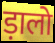
ड़ालो